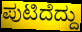
ಪುಟಿದೆದ್ದು